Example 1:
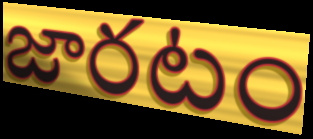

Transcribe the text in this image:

జారటం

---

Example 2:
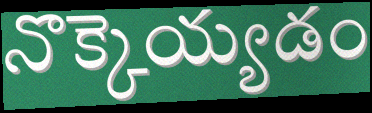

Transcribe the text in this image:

నొక్కెయ్యడం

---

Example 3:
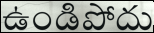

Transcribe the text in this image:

ఉండిపోదు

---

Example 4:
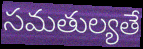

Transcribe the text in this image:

సమతుల్యతే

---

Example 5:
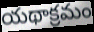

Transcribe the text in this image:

యథాక్రమం